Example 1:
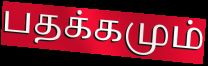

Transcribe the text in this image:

பதக்கமும்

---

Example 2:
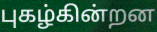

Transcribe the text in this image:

புகழ்கின்றன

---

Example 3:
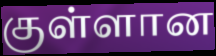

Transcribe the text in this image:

குள்ளான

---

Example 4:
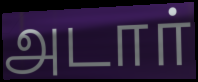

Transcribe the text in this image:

அடார்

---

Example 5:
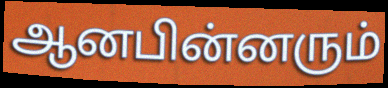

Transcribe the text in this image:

ஆனபின்னரும்